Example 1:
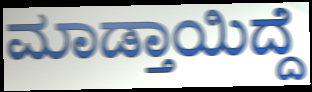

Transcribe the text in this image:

ಮಾಡ್ತಾಯಿದ್ದೆ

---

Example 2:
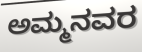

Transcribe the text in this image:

ಅಮ್ಮನವರ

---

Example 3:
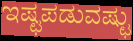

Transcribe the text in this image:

ಇಷ್ಟಪಡುವಷ್ಟು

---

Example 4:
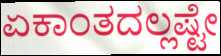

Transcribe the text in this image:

ಏಕಾಂತದಲ್ಲಷ್ಟೇ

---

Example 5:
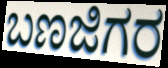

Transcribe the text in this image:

ಬಣಜಿಗರ